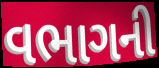
વભાગની